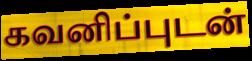
கவனிப்புடன்